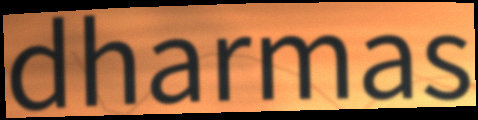
dharmas